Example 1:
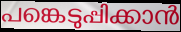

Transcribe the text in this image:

പങ്കെടുപ്പിക്കാൻ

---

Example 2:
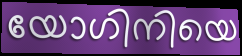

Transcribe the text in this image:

യോഗിനിയെ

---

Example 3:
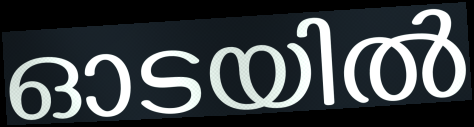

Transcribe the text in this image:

ഓടയിൽ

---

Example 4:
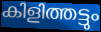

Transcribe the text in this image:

കിളിത്തട്ടും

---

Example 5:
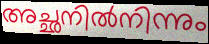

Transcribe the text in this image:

അച്ഛനിൽനിന്നും